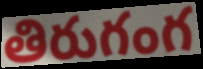
తిరుగంగ